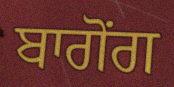
ਬਾਗੋਂਗ